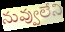
నువ్వులేని